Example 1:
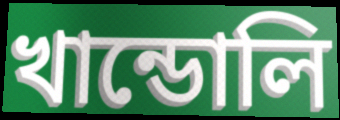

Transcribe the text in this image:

খান্ডোলি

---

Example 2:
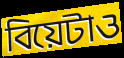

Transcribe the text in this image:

বিয়েটাও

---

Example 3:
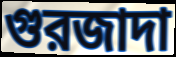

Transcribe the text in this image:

গুরজাদা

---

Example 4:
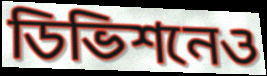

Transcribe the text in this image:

ডিভিশনেও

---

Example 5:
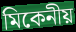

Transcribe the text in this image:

মিকেনীয়